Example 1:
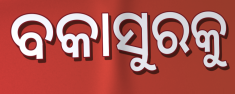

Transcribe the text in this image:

ବକାସୁରକୁ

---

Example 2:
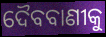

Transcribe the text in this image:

ଦୈବବାଣୀକୁ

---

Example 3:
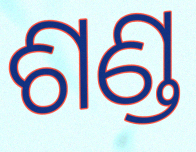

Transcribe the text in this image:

ଶଣ୍ଡ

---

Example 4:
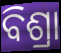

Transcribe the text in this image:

ବିଶ୍ରା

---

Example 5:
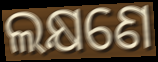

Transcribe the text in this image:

ଲକ୍ଷଣେ